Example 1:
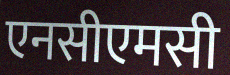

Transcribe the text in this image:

एनसीएमसी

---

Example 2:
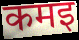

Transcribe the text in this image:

कमइ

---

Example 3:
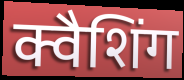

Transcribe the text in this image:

क्वैशिंग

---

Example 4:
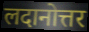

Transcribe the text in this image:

लदानोत्तर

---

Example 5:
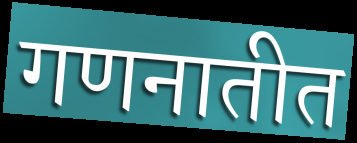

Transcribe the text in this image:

गणनातीत